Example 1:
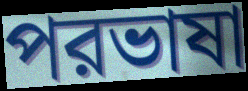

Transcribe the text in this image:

পরভাষা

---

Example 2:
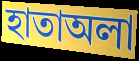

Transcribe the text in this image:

হাতাঅলা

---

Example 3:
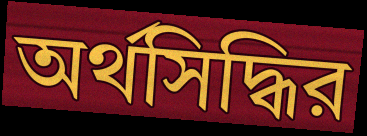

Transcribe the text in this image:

অর্থসিদ্ধির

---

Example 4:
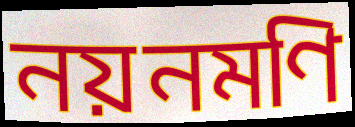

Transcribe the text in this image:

নয়নমণি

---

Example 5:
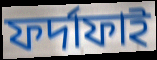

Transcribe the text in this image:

ফর্দাফাই